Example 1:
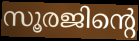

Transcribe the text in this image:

സൂരജിന്റെ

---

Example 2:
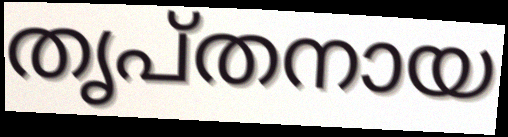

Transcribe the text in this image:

തൃപ്തനായ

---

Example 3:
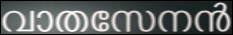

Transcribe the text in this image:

വാതസേനൻ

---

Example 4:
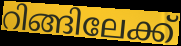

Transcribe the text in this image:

റിങ്ങിലേക്ക്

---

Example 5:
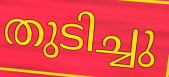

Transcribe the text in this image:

തുടിച്ചു